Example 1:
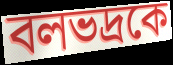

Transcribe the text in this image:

বলভদ্রকে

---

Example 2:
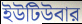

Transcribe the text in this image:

ইউটিউবার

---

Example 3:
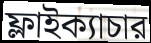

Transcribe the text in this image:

ফ্লাইক্যাচার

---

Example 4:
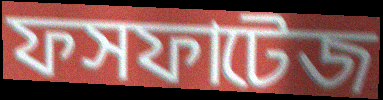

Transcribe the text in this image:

ফসফাটেজ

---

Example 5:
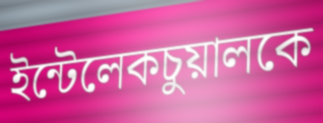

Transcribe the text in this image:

ইন্টেলেকচুয়ালকে